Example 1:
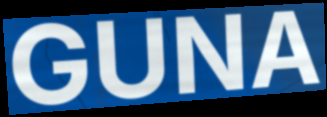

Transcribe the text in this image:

GUNA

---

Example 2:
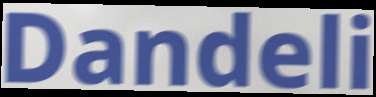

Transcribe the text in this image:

Dandeli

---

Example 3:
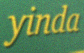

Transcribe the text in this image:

yinda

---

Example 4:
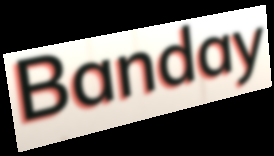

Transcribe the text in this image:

Banday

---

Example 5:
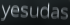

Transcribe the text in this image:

yesudas